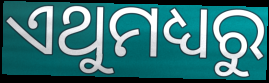
ଏଥୁମଧ୍ୟରୁ